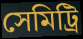
সেমিট্রি